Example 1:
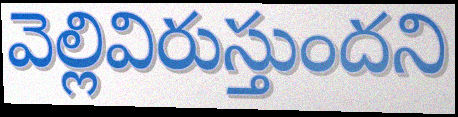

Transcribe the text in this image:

వెల్లివిరుస్తుందని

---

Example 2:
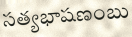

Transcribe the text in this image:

సత్యభాషణంబు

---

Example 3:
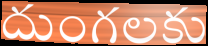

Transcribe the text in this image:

దుంగలకు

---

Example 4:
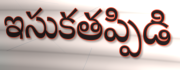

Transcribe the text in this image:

ఇసుకతప్పిడి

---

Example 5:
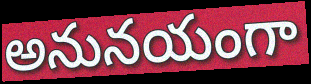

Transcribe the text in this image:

అనునయంగా